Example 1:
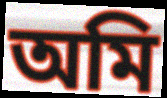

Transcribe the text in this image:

অমি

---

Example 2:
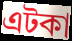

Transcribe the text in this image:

এটকা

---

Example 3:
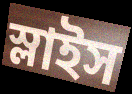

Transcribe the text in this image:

স্লাইস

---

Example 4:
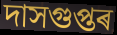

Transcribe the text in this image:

দাসগুপ্তৰ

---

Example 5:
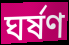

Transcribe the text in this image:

ঘৰ্ষণ